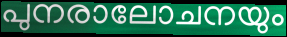
പുനരാലോചനയും